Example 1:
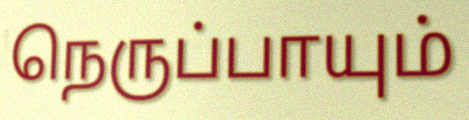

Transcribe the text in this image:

நெருப்பாயும்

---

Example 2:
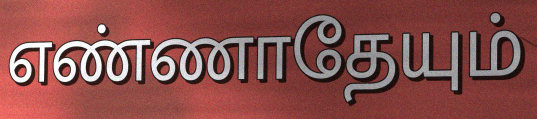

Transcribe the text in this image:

எண்ணாதேயும்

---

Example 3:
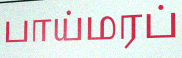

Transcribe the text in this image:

பாய்மரப்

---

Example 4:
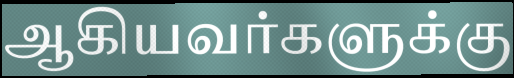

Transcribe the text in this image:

ஆகியவர்களுக்கு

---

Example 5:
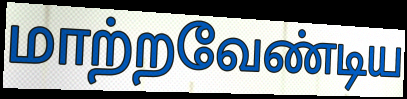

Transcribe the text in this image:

மாற்றவேண்டிய